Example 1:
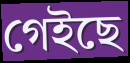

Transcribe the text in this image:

গেইছে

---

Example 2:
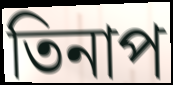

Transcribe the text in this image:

তিনাপ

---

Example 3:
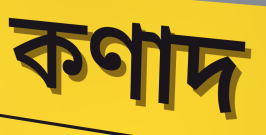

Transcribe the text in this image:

কণাদ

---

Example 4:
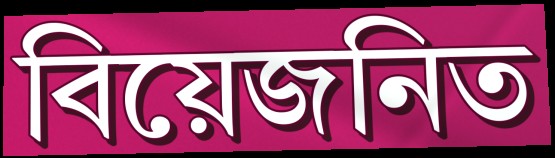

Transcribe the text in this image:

বিয়েজনিত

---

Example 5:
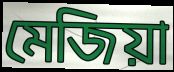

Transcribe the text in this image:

মেজিয়া